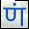
णं